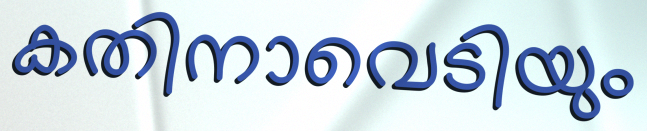
കതിനാവെടിയും